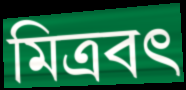
মিত্রবৎ